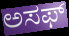
ಅಸಫ್